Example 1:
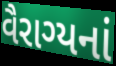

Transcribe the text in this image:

વૈરાગ્યનાં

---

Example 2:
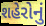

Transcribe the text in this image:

શહેરોનું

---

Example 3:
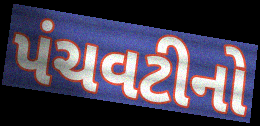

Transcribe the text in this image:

પંચવટીનો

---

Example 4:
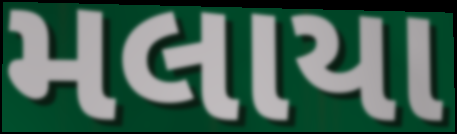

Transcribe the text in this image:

મલાયા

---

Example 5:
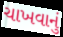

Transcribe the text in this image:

ચાખવાનું